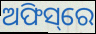
ଅଫିସ୍‌ରେ